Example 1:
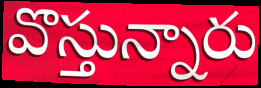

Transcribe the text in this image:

వొస్తున్నారు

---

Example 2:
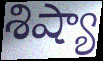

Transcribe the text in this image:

శిష్యా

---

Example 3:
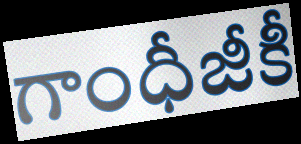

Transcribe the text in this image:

గాంధీజీకీ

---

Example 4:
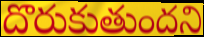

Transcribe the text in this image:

దొరుకుతుందని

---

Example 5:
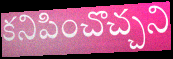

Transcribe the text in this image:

కనిపించొచ్చని